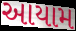
આયામ